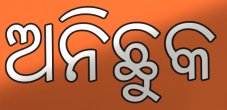
ଅନିଛୁକ